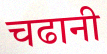
चढानी